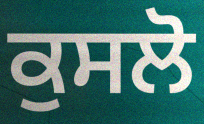
ਕੁਸਲੋ